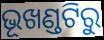
ଭୂଖଣ୍ଡଟିରୁ